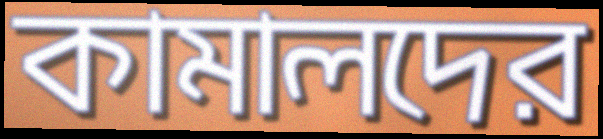
কামালদের